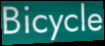
Bicycle